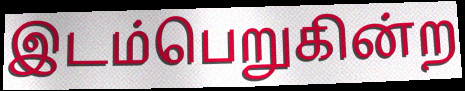
இடம்பெறுகின்ற